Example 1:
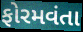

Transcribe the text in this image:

ફોરમવંતા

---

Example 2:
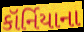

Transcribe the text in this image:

કૉર્નિયાના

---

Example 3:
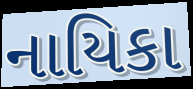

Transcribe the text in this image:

નાયિકા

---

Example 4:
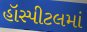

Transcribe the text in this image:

હૉસ્પીટલમાં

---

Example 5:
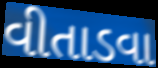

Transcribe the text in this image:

વીતાડવા